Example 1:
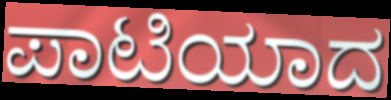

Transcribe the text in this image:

ಪಾಟಿಯಾದ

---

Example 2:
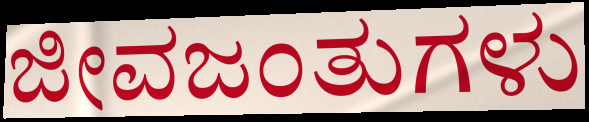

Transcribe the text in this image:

ಜೀವಜಂತುಗಳು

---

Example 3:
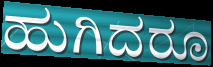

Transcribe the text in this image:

ಹುಗಿದರೂ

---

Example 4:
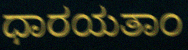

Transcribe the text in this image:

ಧಾರಯತಾಂ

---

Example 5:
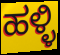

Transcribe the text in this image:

ಹಳ್ಳಿ